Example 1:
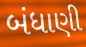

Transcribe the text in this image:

બંધાણી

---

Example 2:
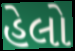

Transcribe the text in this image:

હેલો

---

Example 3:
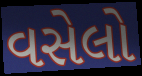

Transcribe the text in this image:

વસેલો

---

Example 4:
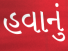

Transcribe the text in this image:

હવાનું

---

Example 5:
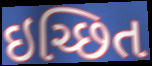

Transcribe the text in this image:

ઇચ્છિત